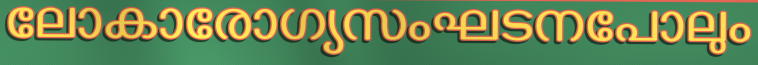
ലോകാരോഗ്യസംഘടനപോലും